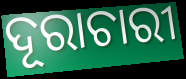
ଦୂରାଚାରୀ